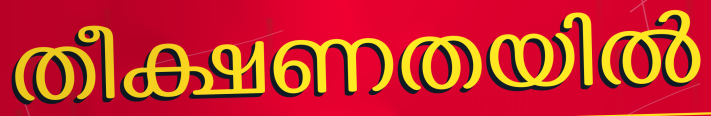
തീക്ഷണതയിൽ